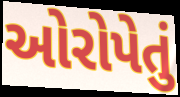
ઓરોપેતું